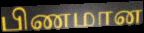
பிணமான